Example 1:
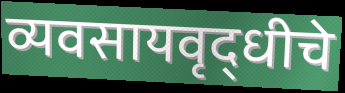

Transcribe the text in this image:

व्यवसायवृद्धीचे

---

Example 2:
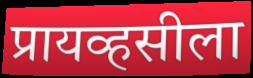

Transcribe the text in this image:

प्रायव्हसीला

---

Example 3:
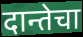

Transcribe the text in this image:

दान्तेचा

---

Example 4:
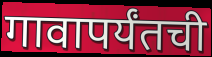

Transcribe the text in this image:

गावापर्यंतची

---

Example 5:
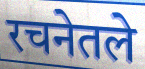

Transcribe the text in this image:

रचनेतले